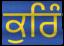
ਕੁਰਿੰ